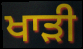
ਖਾਡ਼ੀ